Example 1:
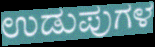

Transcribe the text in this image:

ಉಡುಪುಗಳ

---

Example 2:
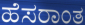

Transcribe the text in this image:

ಹೆಸರಾಂತ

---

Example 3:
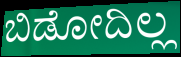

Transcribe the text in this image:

ಬಿಡೋದಿಲ್ಲ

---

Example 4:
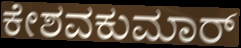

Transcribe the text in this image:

ಕೇಶವಕುಮಾರ್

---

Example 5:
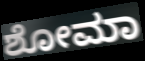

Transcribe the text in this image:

ಶೋಮಾ